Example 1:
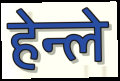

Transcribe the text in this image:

हेन्ले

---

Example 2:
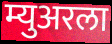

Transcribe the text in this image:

म्युअरला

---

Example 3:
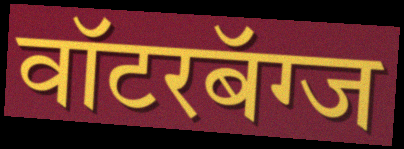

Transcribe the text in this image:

वॉटरबॅग्ज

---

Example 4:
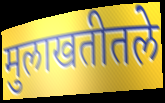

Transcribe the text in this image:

मुलाखतीतले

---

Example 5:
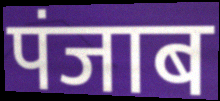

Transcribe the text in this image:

पंजाब